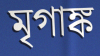
মৃগাঙ্ক